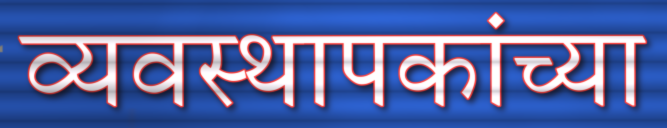
व्यवस्थापकांच्या